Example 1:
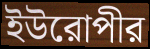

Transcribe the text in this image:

ইউরোপীর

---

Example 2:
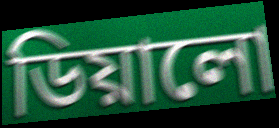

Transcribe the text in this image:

ডিয়ালো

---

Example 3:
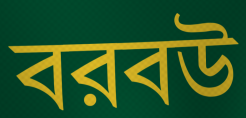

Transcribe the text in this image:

বরবউ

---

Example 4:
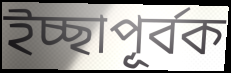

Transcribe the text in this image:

ইচ্ছাপূর্বক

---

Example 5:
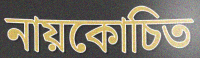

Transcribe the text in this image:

নায়কোচিত